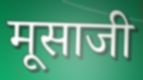
मूसाजी